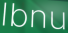
Ibnu